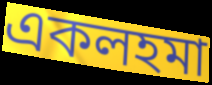
একলহমা